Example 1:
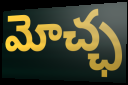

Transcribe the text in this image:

మోచ్ఛ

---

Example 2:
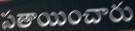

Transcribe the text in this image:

సతాయించారు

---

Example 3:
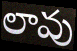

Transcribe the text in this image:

లావు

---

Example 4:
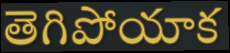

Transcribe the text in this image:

తెగిపోయాక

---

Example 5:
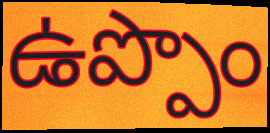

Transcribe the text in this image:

ఉప్పొం